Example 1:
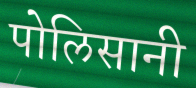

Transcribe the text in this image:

पोलिसानी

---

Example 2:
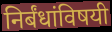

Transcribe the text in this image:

निर्बंधांविषयी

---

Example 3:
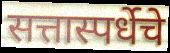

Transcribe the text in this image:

सत्तास्पर्धेचे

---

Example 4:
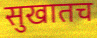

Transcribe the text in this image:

सुखातच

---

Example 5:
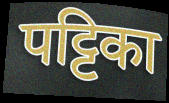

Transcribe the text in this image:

पट्टिका